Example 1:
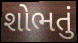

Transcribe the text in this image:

શોભતું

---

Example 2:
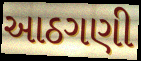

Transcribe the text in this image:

આઠગણી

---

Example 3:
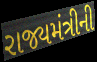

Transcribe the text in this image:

રાજ્યમંત્રીની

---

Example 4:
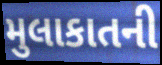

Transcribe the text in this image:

મુલાકાતની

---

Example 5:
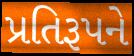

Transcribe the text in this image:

પ્રતિરૂપને